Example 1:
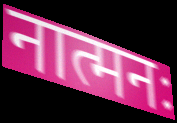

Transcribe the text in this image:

नात्मनः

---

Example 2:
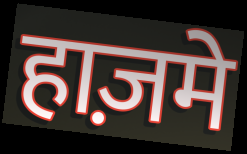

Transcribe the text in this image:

हाज़मे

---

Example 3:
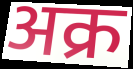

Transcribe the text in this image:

अक्र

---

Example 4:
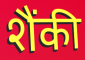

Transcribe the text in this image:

शैंकी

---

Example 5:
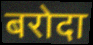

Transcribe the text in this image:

बरोदा